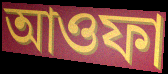
আওফা